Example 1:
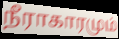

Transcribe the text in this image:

நீராகாரமும்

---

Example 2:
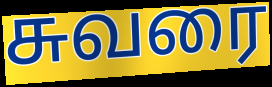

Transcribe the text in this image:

சுவரை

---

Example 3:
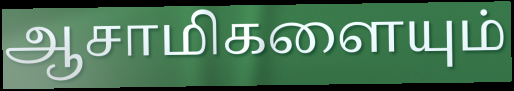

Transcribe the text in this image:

ஆசாமிகளையும்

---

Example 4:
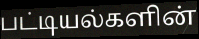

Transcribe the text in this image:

பட்டியல்களின்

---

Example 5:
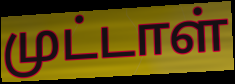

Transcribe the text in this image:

முட்டாள்